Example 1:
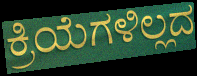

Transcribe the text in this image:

ಕ್ರಿಯೆಗಳಿಲ್ಲದ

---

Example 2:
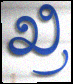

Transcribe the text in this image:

ಖ್ರಿ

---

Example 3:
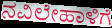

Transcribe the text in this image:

ನವಿಲೇಹಾಳಿಗೆ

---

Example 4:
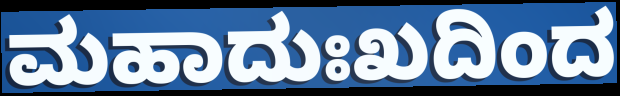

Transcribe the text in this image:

ಮಹಾದುಃಖದಿಂದ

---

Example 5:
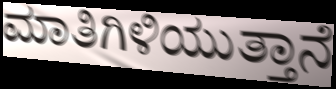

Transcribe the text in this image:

ಮಾತಿಗಿಳಿಯುತ್ತಾನೆ